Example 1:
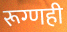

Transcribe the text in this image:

रूग्णही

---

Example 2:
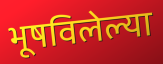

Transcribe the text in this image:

भूषविलेल्या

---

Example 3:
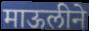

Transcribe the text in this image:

माऊलीने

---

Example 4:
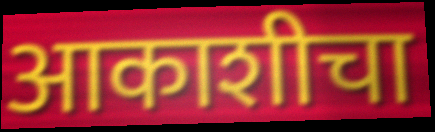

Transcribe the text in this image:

आकाशीचा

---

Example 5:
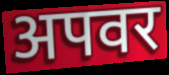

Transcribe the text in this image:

अपवर